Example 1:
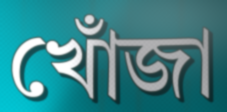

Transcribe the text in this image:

খোঁজা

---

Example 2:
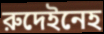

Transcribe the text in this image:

রুদেইনেহ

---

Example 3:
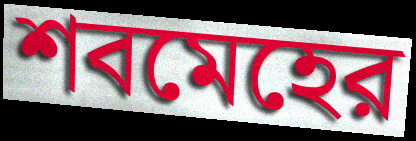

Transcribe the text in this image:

শবমেহের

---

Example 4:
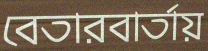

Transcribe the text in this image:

বেতারবার্তায়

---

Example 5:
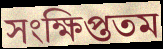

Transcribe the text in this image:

সংক্ষিপ্ততম